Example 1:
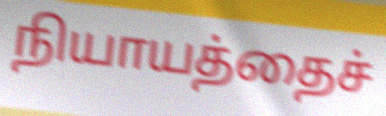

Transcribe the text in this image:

நியாயத்தைச்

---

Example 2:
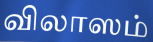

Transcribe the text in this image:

விலாஸம்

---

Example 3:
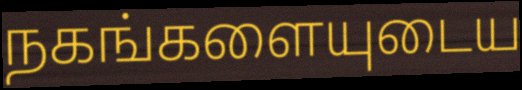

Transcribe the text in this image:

நகங்களையுடைய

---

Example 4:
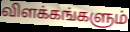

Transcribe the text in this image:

விளக்கங்களும்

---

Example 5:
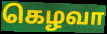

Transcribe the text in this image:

கெழவா